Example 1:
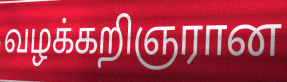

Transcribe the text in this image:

வழக்கறிஞரான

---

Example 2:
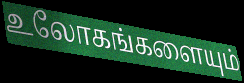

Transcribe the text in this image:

உலோகங்களையும்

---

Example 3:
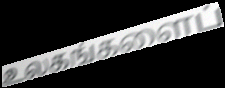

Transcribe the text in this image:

உலகங்களைப்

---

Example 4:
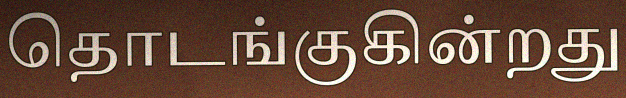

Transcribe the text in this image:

தொடங்குகின்றது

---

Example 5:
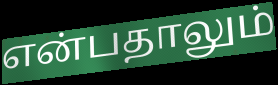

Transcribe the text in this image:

என்பதாலும்